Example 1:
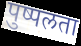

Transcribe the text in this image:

पुष्पलता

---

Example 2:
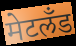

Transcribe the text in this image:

मेटलँड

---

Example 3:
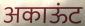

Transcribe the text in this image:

अकाऊंट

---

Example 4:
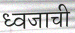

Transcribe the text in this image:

ध्वजाची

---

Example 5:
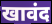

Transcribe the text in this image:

खावंद